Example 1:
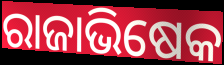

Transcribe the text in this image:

ରାଜାଭିଷେକ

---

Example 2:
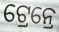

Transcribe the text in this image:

ଟ୍ରେନ୍ରେ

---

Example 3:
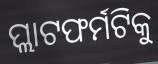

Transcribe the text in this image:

ପ୍ଲାଟଫର୍ମଟିକୁ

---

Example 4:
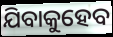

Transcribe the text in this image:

ଯିବାକୁହେବ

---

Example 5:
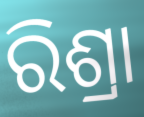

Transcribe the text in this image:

ରିଶ୍ରା